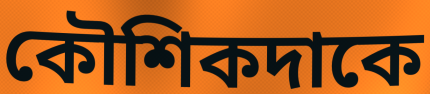
কৌশিকদাকে